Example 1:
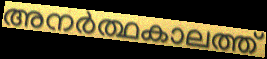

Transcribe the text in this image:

അനർത്ഥകാലത്ത്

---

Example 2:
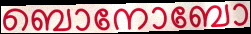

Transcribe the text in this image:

ബൊനോബോ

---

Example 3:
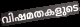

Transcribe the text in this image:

വിഷമതകളുടെ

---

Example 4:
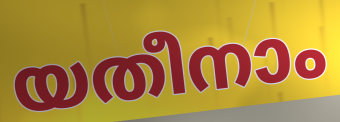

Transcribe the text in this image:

യതീനാം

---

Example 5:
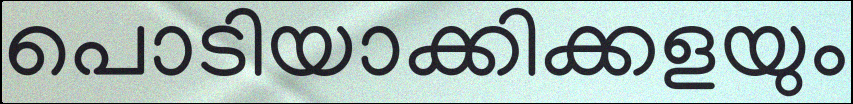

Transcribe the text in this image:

പൊടിയാക്കിക്കളയും